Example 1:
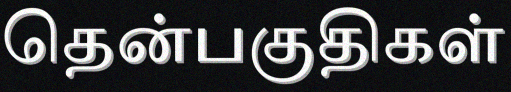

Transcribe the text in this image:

தென்பகுதிகள்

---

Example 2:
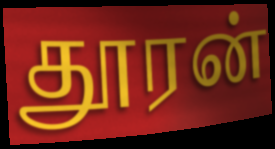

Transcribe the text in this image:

தூரன்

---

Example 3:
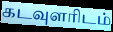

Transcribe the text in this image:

கடவுளரிடம்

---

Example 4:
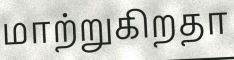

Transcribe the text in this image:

மாற்றுகிறதா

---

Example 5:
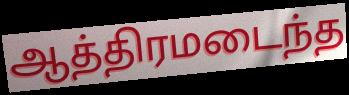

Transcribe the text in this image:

ஆத்திரமடைந்த